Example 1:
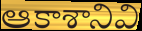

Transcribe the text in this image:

ఆకాశానివి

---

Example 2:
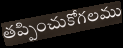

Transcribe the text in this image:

తప్పించుకోగలము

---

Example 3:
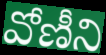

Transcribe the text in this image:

వోణీని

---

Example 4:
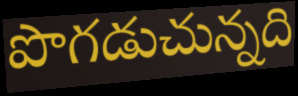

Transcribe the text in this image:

పొగడుచున్నది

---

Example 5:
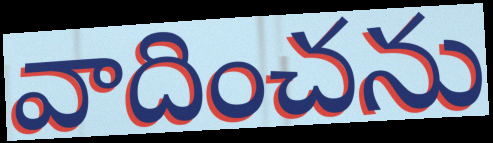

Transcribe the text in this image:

వాదించను